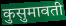
कुसुमावती